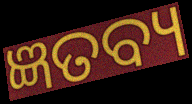
ଜ୍ଞତବ୍ୟ